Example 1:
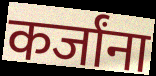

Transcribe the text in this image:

कर्जांना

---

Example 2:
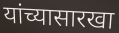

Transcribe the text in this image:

यांच्यासारखा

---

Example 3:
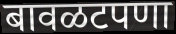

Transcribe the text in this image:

बावळटपणा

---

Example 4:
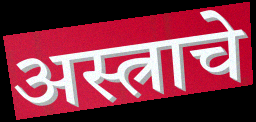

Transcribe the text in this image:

अस्त्राचे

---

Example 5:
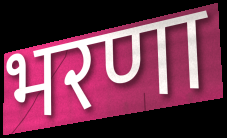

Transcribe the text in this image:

भरणा